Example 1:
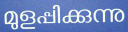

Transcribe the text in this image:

മുളപ്പിക്കുന്നു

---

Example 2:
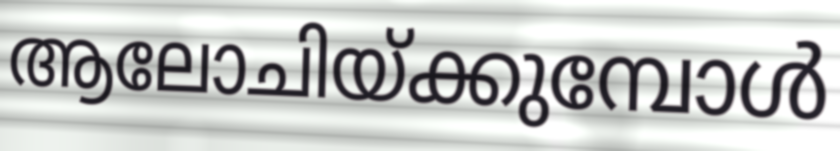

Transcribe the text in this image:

ആലോചിയ്ക്കുമ്പോൾ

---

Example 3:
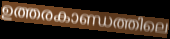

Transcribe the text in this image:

ഉത്തരകാണ്ഡത്തിലെ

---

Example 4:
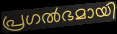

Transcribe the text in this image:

പ്രഗൽഭമായി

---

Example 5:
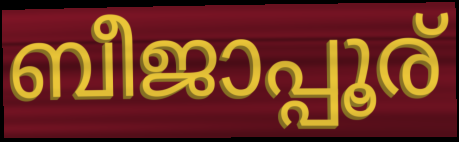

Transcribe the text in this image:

ബീജാപ്പൂര്